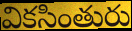
వికసింతురు